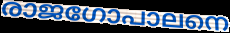
രാജഗോപാലനെ